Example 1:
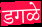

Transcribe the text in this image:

डगळे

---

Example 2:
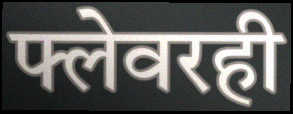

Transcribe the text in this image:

फ्लेवरही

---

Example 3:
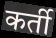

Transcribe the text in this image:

कर्ती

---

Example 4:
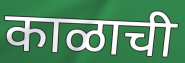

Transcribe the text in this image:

काळाची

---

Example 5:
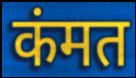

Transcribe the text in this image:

कंमत